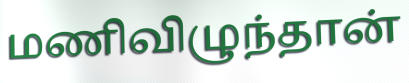
மணிவிழுந்தான்